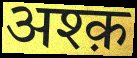
अश्क़